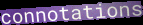
connotations